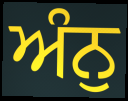
ਅੰਨੁ